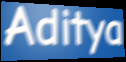
Aditya